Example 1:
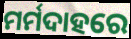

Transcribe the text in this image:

ମର୍ମଦାହରେ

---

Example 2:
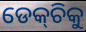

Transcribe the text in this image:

ଡେକ୍‌ଚିକୁ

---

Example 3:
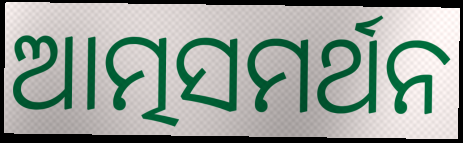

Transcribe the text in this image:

ଆତ୍ମସମର୍ଥନ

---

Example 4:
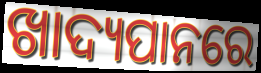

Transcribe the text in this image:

ଖାଦ୍ୟପାନରେ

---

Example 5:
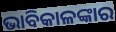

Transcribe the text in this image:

ଭାବିକାଳଙ୍କାର